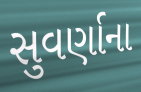
સુવર્ણાના